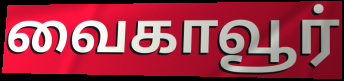
வைகாவூர்